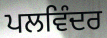
ਪਲਵਿੰਦਰ